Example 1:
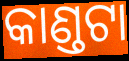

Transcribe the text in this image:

କାଣ୍ଡଟା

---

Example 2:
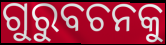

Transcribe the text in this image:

ଗୁରୁବଚନକୁ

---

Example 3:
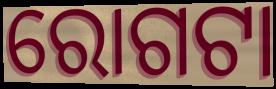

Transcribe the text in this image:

ରୋଗଟା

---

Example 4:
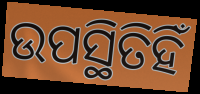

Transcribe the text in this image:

ଉପସ୍ଥିତିହିଁ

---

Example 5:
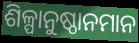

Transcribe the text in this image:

ଶିଳ୍ପାନୁଷ୍ଠାନମାନ